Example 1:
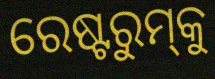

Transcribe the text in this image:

ରେଷ୍ଟରୁମ୍‌କୁ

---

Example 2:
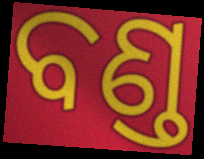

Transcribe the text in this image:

ବଣ୍ଡ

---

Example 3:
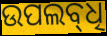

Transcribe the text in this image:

ଉପଲବ୍‍ଧି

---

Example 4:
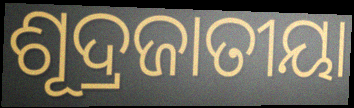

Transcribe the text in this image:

ଶୂଦ୍ରଜାତୀୟା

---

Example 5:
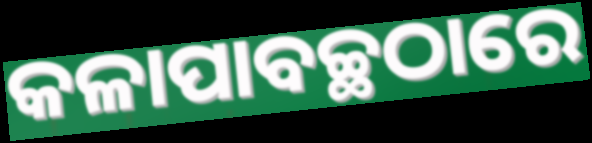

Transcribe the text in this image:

କଳାପାବଚ୍ଛଠାରେ